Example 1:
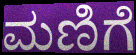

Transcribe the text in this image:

ಮಣಿಗೆ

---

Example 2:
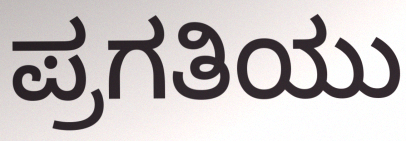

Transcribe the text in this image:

ಪ್ರಗತಿಯು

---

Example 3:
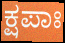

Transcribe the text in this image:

ಕ್ಷಪಾಃ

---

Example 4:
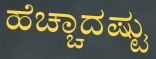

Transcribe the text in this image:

ಹೆಚ್ಚಾದಷ್ಟು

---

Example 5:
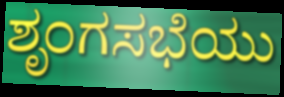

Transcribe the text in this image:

ಶೃಂಗಸಭೆಯು